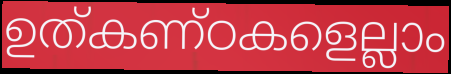
ഉത്കണ്ഠകളെല്ലാം